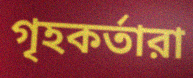
গৃহকর্তারা